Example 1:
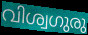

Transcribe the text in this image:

വിശ്വഗുരു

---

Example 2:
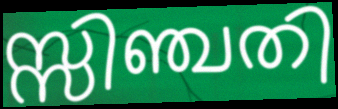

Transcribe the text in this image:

സ്സിഞ്ചതി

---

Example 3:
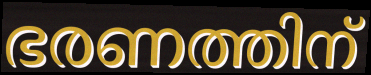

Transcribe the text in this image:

ഭരണത്തിന്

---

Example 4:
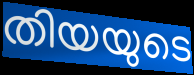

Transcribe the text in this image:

തിയയുടെ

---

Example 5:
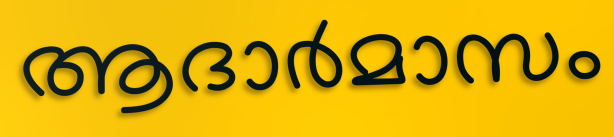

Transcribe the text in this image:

ആദാർമാസം